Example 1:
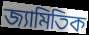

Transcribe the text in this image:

জ্যামিতিক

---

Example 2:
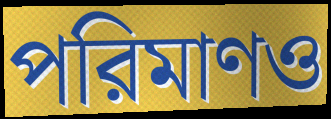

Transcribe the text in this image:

পরিমাণও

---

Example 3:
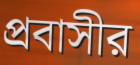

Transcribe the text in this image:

প্রবাসীর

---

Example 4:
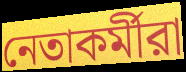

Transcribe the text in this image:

নেতাকর্মীরা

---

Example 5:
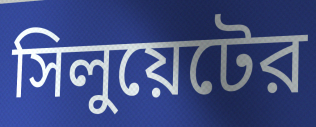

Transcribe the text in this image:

সিলুয়েটের